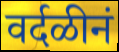
वर्दळीनं